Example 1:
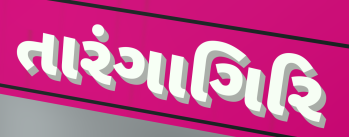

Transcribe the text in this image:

તારંગાગિરિ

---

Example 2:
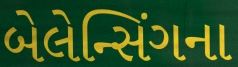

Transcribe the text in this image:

બેલેન્સિંગના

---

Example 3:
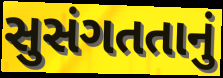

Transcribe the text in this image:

સુસંગતતાનું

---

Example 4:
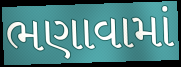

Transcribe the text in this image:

ભણાવામાં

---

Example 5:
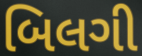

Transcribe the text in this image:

બિલગી